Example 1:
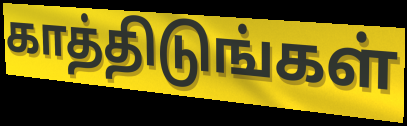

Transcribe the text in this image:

காத்திடுங்கள்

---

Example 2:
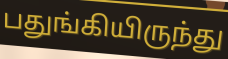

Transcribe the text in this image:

பதுங்கியிருந்து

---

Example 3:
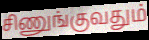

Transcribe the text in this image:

சிணுங்குவதும்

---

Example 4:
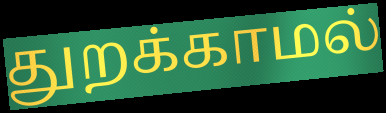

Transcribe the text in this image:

துறக்காமல்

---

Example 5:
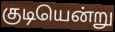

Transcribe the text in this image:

குடியென்று